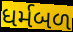
ધર્મબળ